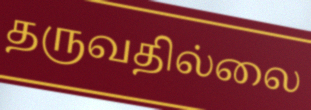
தருவதில்லை